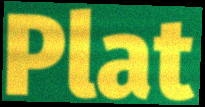
Plat